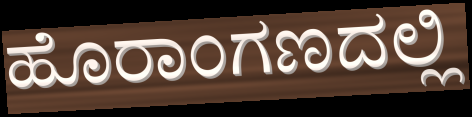
ಹೊರಾಂಗಣದಲ್ಲಿ